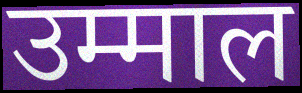
उम्माल